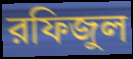
রফিজুল